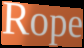
Rope